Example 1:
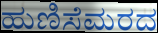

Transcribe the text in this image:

ಹುಣಿಸೆಮರದ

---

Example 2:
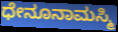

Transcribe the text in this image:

ಧೇನೂನಾಮಸ್ಮಿ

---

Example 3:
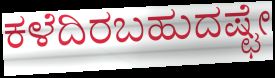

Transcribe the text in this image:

ಕಳೆದಿರಬಹುದಷ್ಟೇ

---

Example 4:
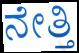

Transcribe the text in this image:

ನೇತ್ತಿ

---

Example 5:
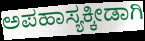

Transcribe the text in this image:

ಅಪಹಾಸ್ಯಕ್ಕೀಡಾಗಿ